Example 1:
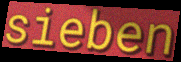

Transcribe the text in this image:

sieben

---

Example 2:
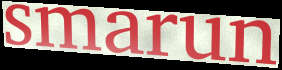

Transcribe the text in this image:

smarun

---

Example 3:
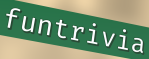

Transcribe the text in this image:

funtrivia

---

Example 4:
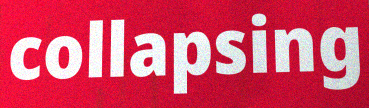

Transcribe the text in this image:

collapsing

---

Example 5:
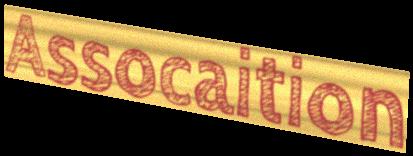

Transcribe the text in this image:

Assocaition